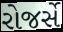
રોજર્સે